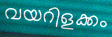
വയറിളക്കം